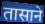
तासाने